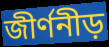
জীর্ণনীড়